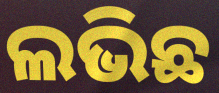
ଲଭିଛ